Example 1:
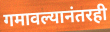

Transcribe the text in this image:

गमावल्यानंतरही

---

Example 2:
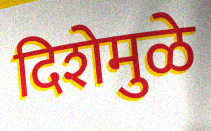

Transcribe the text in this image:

दिशेमुळे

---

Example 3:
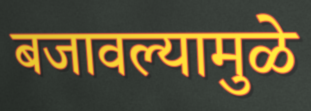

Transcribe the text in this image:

बजावल्यामुळे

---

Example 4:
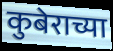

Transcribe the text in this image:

कुबेराच्या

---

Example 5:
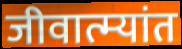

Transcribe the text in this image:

जीवात्म्यांत